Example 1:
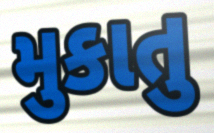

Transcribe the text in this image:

મુકાતુ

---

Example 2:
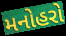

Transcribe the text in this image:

મનોહરો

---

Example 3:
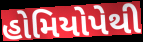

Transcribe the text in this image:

હોમિયોપેથી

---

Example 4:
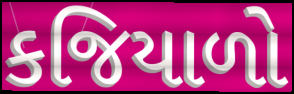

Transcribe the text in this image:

કજિયાળો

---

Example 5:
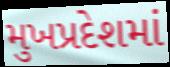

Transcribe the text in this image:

મુખપ્રદેશમાં